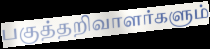
பகுத்தறிவாளர்களும்